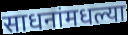
साधनांमधल्या